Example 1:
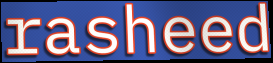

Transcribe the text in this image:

rasheed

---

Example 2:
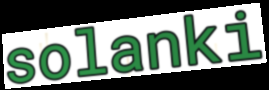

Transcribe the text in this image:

solanki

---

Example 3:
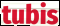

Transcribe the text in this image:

tubis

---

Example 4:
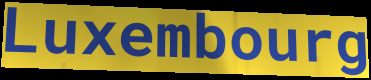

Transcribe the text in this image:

Luxembourg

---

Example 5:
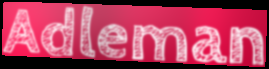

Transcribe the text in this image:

Adleman